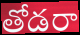
తోడరా